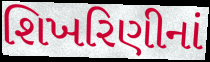
શિખરિણીનાં